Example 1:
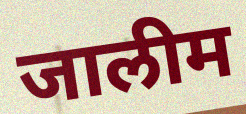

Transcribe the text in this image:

जालीम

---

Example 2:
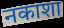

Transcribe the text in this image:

नकाशा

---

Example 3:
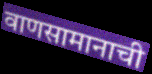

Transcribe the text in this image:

वाणसामानाची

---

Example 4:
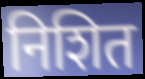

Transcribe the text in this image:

निशित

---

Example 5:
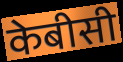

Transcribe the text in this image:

केबीसी